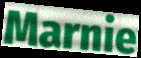
Marnie